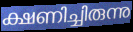
ക്ഷണിച്ചിരുന്നു